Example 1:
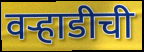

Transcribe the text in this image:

वऱ्हाडीची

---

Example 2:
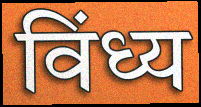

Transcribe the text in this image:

विंध्य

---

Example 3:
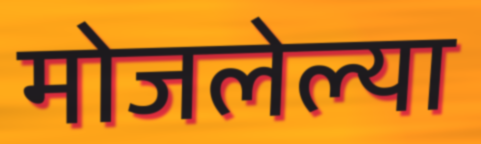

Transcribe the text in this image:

मोजलेल्या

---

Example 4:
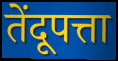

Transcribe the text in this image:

तेंदूपत्ता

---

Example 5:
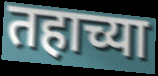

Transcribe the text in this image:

तहाच्या